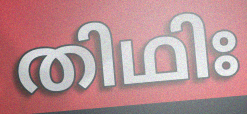
തിഥിഃ